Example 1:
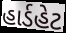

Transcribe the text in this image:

હાર્ડહેટ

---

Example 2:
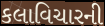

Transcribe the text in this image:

કલાવિચારની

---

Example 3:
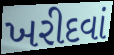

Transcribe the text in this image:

ખરીદવાં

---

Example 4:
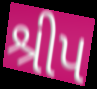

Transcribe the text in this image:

શ્રીપ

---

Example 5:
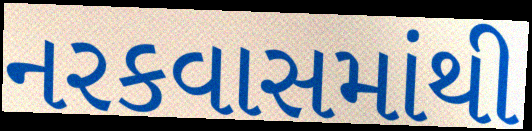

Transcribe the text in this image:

નરકવાસમાંથી